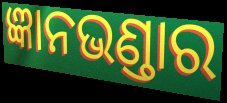
ଜ୍ଞାନଭଣ୍ଡାର